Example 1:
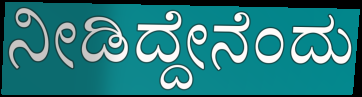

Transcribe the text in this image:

ನೀಡಿದ್ದೇನೆಂದು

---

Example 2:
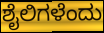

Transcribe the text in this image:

ಶೈಲಿಗಳೆಂದು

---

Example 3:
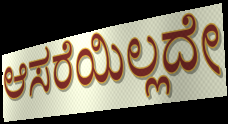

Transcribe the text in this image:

ಆಸರೆಯಿಲ್ಲದೇ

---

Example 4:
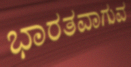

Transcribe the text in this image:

ಭಾರತವಾಗುವ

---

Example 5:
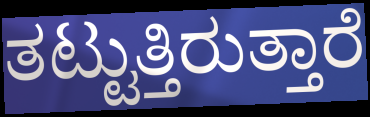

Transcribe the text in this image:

ತಟ್ಟುತ್ತಿರುತ್ತಾರೆ